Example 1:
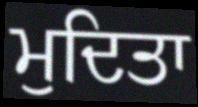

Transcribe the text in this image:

ਮੁਦਿਤਾ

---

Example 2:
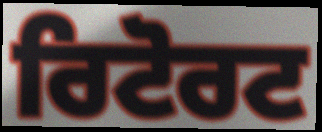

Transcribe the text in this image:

ਰਿਟੋਰਟ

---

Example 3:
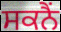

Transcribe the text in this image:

ਸਕਨੈਂ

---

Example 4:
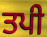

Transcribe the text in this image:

ਤਪੀ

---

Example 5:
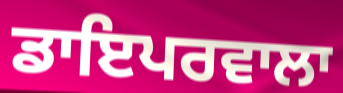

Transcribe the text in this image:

ਡਾਇਪਰਵਾਲਾ